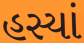
હસ્યાં